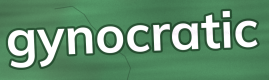
gynocratic